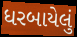
ધરબાયેલું